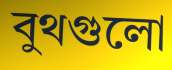
বুথগুলো